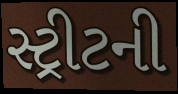
સ્ટ્રીટની